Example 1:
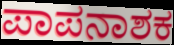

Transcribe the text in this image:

ಪಾಪನಾಶಕ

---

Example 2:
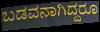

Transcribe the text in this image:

ಬಡವನಾಗಿದ್ದರೂ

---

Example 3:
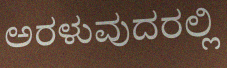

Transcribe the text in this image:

ಅರಳುವುದರಲ್ಲಿ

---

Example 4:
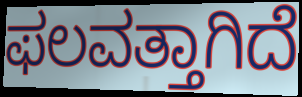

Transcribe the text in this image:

ಫಲವತ್ತಾಗಿದೆ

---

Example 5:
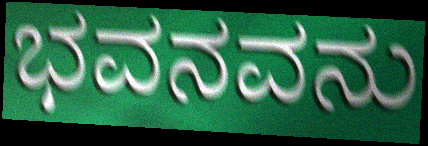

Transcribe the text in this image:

ಭವನವನು